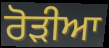
ਰੋੜੀਆ